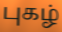
புகழ்